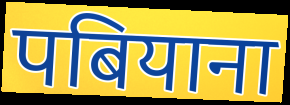
पबियाना